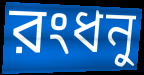
রংধনু